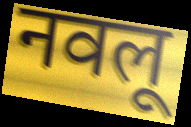
नवलू